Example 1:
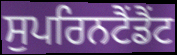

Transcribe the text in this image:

ਸੁਪਰਿਨਟੈਂਡੈਂਟ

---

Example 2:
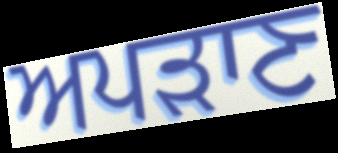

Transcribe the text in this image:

ਅਪੜਾਣ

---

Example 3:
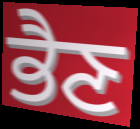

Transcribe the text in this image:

ਭੈਣ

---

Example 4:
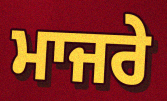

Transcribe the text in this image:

ਮਾਜਰੇ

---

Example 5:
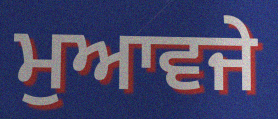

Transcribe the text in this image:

ਮੁਆਵਜੇ